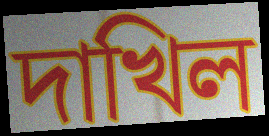
দাখিল